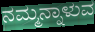
ನಮ್ಮನ್ನಾಳುವ